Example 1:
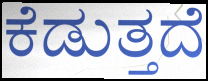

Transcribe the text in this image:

ಕೆಡುತ್ತದೆ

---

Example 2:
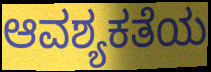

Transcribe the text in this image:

ಆವಶ್ಯಕತೆಯ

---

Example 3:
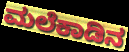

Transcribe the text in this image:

ಮಲೆಕಾಡಿನ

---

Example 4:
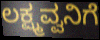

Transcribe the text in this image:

ಲಕ್ಷ್ಮವ್ವನಿಗೆ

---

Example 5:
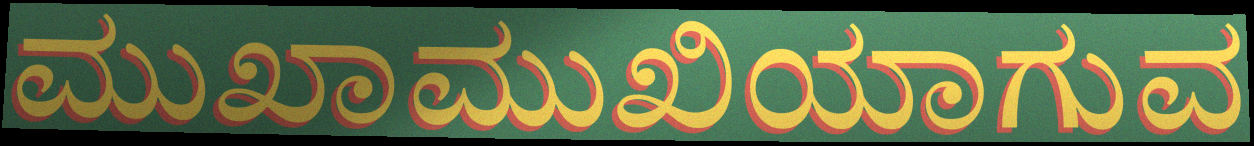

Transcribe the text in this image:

ಮುಖಾಮುಖಿಯಾಗುವ